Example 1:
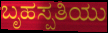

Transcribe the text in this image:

ಬೃಹಸ್ಪತಿಯು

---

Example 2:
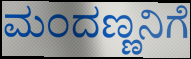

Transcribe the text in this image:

ಮಂದಣ್ಣನಿಗೆ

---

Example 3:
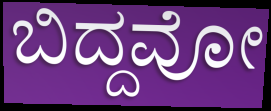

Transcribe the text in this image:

ಬಿದ್ದವೋ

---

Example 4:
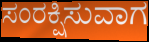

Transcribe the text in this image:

ಸಂರಕ್ಷಿಸುವಾಗ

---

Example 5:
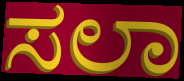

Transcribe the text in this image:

ಸಲಾ